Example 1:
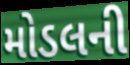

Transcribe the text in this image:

મોડલની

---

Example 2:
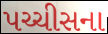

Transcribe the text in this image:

પચ્ચીસના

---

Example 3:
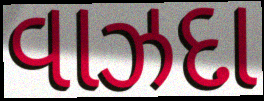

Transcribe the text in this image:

વાઝદા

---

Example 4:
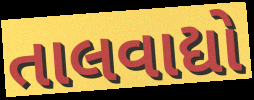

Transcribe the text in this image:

તાલવાદ્યો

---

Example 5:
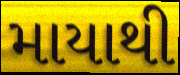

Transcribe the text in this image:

માયાથી